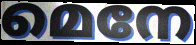
മെനേ